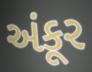
અંકૂર